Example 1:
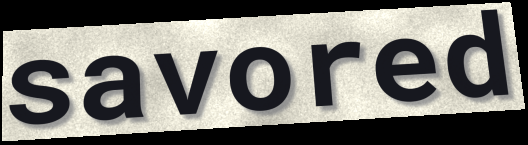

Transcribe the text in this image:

savored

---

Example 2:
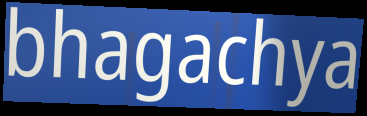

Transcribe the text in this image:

bhagachya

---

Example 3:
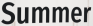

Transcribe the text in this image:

Summer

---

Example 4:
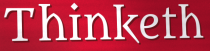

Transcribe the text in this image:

Thinketh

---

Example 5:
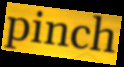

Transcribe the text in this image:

pinch